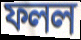
ফলল